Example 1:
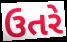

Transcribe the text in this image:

ઉતરે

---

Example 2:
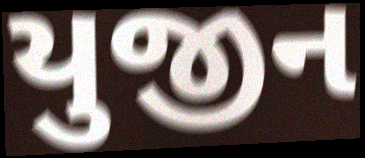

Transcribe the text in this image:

યુજીન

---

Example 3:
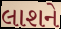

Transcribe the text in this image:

લાશને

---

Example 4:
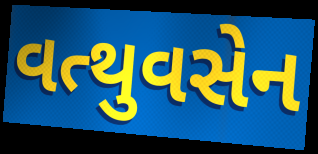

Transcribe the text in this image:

વત્થુવસેન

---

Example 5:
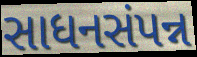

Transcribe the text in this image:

સાધનસંપન્ન